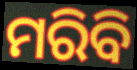
ମରିବି